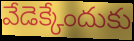
వేడెక్కేందుకు